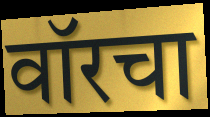
वॉरचा